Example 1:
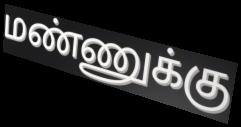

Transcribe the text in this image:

மண்ணுக்கு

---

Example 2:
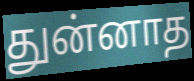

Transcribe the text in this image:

துன்னாத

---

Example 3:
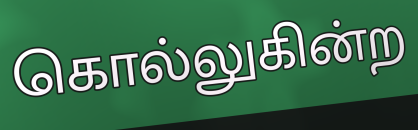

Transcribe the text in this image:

கொல்லுகின்ற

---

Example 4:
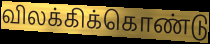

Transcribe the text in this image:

விலக்கிக்கொண்டு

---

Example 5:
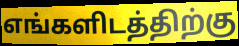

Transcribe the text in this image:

எங்களிடத்திற்கு